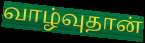
வாழ்வுதான்